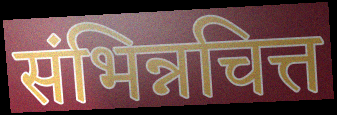
संभिन्नचित्त